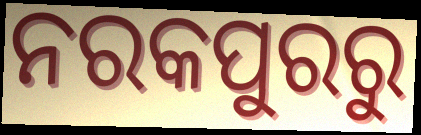
ନରକପୁରରୁ